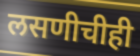
लसणीचीही